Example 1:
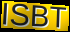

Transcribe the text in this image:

ISBT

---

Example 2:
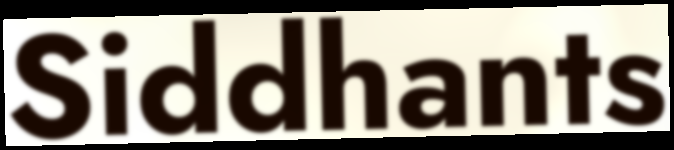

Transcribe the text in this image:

Siddhants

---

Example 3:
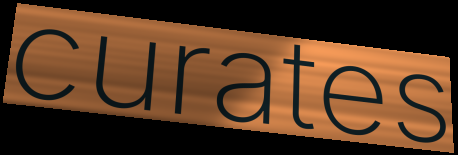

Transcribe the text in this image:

curates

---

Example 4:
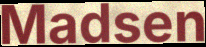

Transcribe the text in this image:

Madsen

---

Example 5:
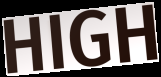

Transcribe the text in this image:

HIGH